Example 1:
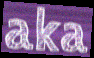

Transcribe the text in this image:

aka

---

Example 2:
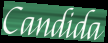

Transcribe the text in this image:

Candida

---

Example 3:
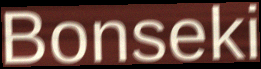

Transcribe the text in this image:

Bonseki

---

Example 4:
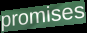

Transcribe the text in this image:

promises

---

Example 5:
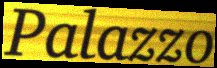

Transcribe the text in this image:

Palazzo